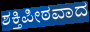
ಶಕ್ತಿಪೀಠವಾದ